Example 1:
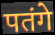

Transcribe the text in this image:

पतंगे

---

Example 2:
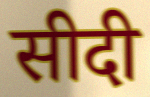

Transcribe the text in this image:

सीदी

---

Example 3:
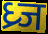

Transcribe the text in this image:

ध्र्ज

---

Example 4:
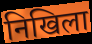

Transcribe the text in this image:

निखिला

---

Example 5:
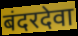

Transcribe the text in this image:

बंदरदेवा